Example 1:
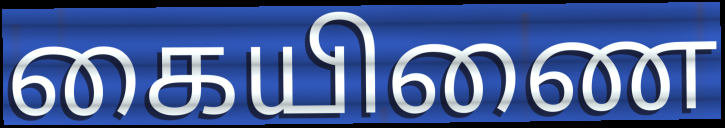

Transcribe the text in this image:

கையிணை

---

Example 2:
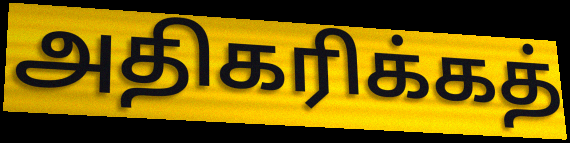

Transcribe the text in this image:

அதிகரிக்கத்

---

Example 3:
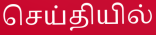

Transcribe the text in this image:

செய்தியில்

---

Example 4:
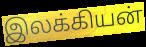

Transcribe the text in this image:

இலக்கியன்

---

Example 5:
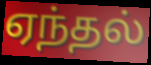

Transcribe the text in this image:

ஏந்தல்